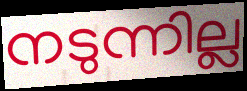
നടുന്നില്ല